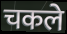
चकले